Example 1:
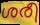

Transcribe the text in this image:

ശരീ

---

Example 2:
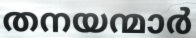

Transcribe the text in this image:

തനയന്മാർ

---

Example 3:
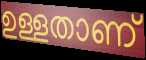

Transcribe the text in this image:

ഉള്ളതാണ്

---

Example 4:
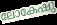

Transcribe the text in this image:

ലോകേഷു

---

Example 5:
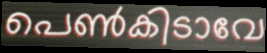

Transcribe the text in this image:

പെൺകിടാവേ